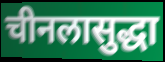
चीनलासुद्धा